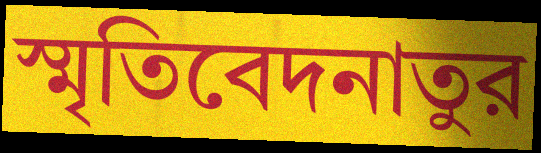
স্মৃতিবেদনাতুর